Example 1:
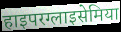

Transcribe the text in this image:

हाइपरग्लाइसेमिया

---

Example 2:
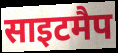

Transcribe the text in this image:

साइटमैप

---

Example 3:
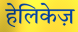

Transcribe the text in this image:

हेलिकेज़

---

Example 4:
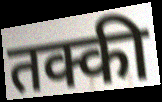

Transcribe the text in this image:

तक्की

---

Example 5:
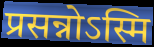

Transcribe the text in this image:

प्रसन्नोऽस्मि